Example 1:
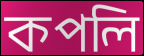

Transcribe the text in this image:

কপলি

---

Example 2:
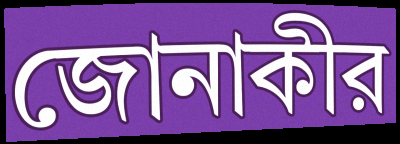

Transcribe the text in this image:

জোনাকীর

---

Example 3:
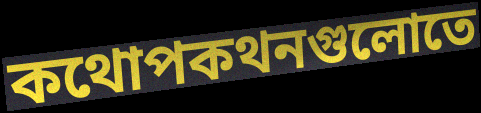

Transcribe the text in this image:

কথোপকথনগুলোতে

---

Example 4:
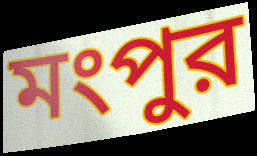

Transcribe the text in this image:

মংপুর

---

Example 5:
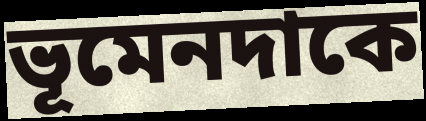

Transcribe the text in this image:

ভূমেনদাকে